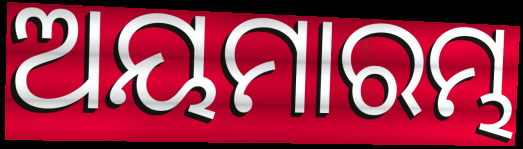
ଅୟମାରମ୍ଭ